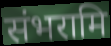
संभरामि